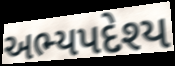
અભ્યપદેશ્ય